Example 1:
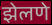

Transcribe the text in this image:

झेलणे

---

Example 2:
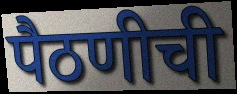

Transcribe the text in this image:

पैठणीची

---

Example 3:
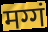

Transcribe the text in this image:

मग्गं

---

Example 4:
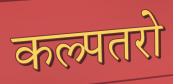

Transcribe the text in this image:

कल्पतरो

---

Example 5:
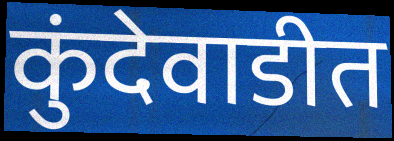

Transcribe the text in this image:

कुंदेवाडीत